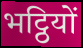
भट्ठियों